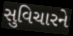
સુવિચારને